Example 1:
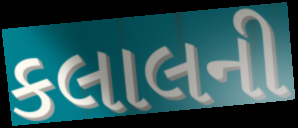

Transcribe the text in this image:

કલાલની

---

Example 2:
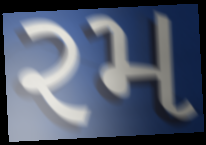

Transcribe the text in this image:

રમ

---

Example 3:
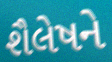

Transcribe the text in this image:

શૈલેષને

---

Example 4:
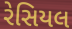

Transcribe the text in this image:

રેસિયલ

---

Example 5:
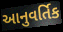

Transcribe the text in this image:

આનુવર્તિક